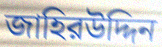
জাহিরউদ্দিন